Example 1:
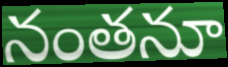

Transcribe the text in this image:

నంతనూ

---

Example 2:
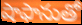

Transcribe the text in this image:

షాఫానుతో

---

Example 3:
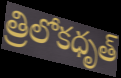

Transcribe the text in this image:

త్రిలోకధృత్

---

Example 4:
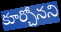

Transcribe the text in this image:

కూర్చోనని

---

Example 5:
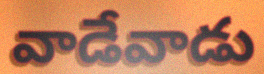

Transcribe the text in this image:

వాడేవాడు